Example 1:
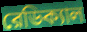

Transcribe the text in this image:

রেডিক্যাল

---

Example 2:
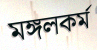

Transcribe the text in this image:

মঙ্গলকর্ম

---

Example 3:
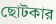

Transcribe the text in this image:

ছোটকার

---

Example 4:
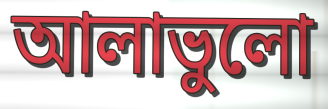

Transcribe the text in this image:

আলাভুলো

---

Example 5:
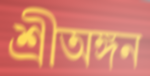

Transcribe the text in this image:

শ্রীঅঙ্গন